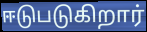
ஈடுபடுகிறார்